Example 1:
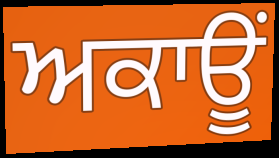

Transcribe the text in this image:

ਅਕਾਊਂ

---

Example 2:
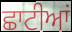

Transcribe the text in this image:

ਛਾਟੀਆਂ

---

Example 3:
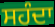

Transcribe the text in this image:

ਸਹੰਦਾ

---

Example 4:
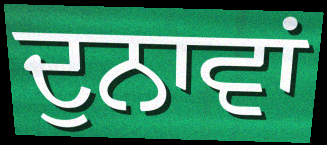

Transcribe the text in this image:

ਦੁਨਾਵਾਂ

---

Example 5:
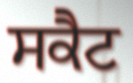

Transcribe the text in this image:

ਸਕੈਟ